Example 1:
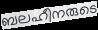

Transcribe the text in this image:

ബലഹീനരുടെ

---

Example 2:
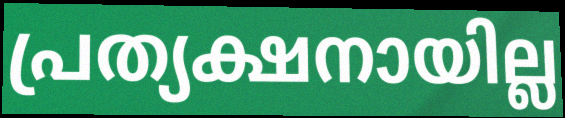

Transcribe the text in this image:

പ്രത്യക്ഷനായില്ല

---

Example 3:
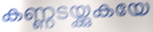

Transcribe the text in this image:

കണ്ണടയ്ക്കുകയേ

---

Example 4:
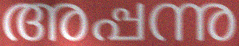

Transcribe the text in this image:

അപ്പന്നു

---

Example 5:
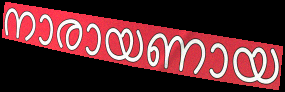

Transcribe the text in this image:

നാരായണായ